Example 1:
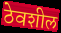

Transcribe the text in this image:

ठेवशील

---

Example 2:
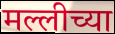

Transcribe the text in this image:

मल्लीच्या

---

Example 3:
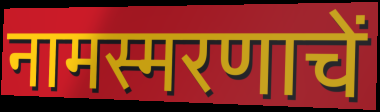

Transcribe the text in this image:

नामस्मरणाचें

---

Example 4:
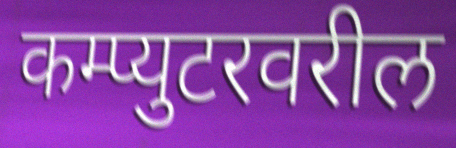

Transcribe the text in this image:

कम्प्युटरवरील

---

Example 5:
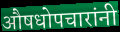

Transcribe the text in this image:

औषधोपचारांनी